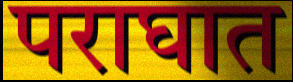
पराघात